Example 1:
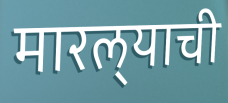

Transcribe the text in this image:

मारल्याची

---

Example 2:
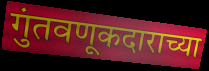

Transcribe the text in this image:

गुंतवणूकदाराच्या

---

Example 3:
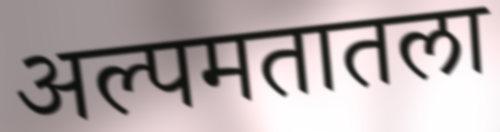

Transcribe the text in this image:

अल्पमतातला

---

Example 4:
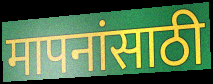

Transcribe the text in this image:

मापनांसाठी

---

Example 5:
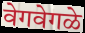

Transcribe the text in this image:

वेगवेगळे